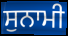
ਸੁਨਾਮੀ